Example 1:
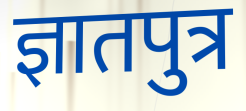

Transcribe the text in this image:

ज्ञातपुत्र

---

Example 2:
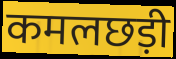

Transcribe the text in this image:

कमलछड़ी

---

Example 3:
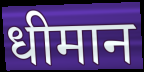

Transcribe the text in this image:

धीमान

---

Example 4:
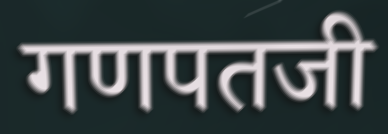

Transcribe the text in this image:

गणपतजी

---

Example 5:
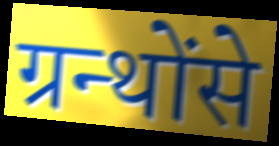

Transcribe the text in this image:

ग्रन्थोंसे